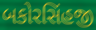
બકોરસિંહજી